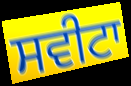
ਸਵੀਟਾ